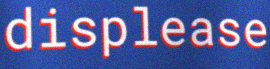
displease